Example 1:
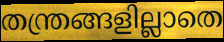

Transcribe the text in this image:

തന്ത്രങ്ങളില്ലാതെ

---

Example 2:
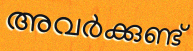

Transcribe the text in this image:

അവർക്കുണ്ട്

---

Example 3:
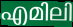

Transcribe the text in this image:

എമിലി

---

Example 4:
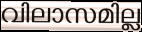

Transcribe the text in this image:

വിലാസമില്ല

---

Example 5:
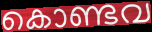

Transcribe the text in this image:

കൊണ്ടവ